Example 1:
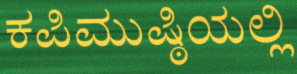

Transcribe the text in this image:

ಕಪಿಮುಷ್ಠಿಯಲ್ಲಿ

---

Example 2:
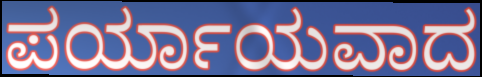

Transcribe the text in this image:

ಪರ್ಯಾಯವಾದ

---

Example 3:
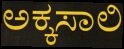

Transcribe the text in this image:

ಅಕ್ಕಸಾಲಿ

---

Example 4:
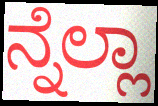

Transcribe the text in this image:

ನ್ನೆಲ್ಲಾ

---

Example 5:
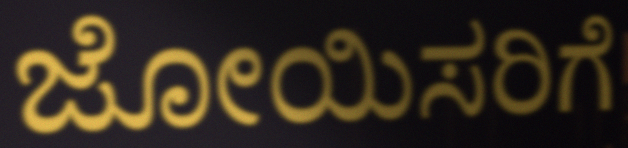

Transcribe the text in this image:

ಜೋಯಿಸರಿಗೆ